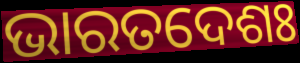
ଭାରତଦେଶଃ